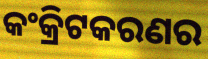
କଂକ୍ରିଟକରଣର